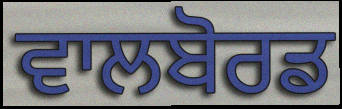
ਵਾਲਬੋਰਡ